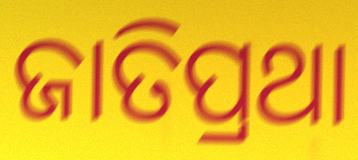
ଜାତିପ୍ରଥା